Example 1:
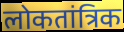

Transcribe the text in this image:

लोकतांत्रिक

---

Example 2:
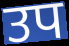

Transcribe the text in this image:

उप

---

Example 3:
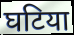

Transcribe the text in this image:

घटिया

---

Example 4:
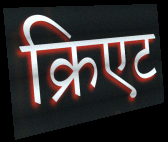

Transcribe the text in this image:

क्रिएट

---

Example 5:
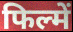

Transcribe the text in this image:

फिल्में